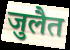
जुलैत